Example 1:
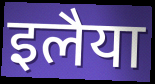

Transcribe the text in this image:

इलैया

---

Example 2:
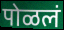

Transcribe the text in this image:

पोळलं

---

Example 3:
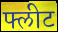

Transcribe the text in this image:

फ्लीट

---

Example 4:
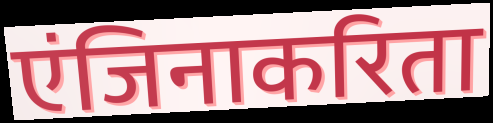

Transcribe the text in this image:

एंजिनाकरिता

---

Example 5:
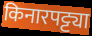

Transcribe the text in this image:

किनारपट्ट्या